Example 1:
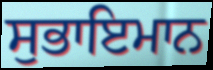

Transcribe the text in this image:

ਸੁਭਾਇਮਾਨ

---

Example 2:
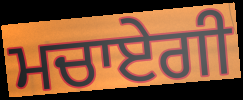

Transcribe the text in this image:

ਮਚਾਏਗੀ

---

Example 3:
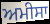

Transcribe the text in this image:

ਅਮੀਸਾ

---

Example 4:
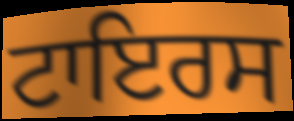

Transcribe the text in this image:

ਟਾਇਰਸ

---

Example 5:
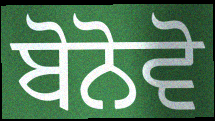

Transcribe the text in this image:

ਬੋਨੋਵੋ